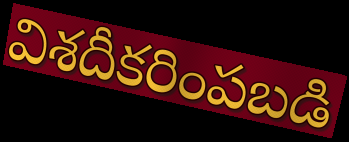
విశదీకరింపబడి